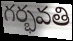
గర్భవతి